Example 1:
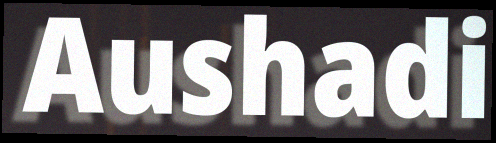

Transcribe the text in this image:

Aushadi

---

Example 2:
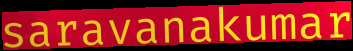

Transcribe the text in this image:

saravanakumar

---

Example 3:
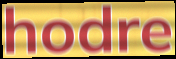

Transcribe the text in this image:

hodre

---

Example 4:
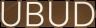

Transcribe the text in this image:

UBUD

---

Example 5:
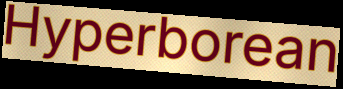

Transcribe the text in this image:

Hyperborean